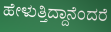
ಹೇಳುತ್ತಿದ್ದಾನೆಂದರೆ